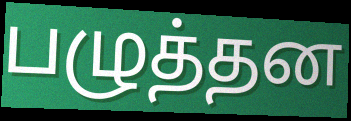
பழுத்தன